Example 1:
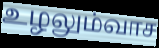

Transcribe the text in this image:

உழலும்வாச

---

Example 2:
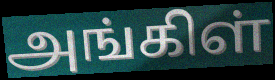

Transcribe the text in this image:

அங்கிள்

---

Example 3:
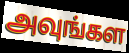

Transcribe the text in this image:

அவுங்கள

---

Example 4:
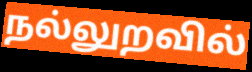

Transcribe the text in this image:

நல்லுறவில்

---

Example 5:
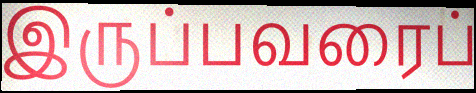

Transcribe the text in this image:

இருப்பவரைப்